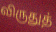
விருதுத்